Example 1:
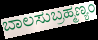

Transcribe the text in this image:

ಬಾಲಸುಬ್ರಹ್ಮಣ್ಯಂ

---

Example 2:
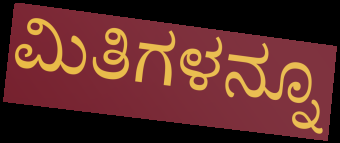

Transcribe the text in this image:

ಮಿತಿಗಳನ್ನೂ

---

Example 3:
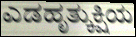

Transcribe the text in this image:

ಎಡಹೃತ್ಕುಕ್ಷಿಯ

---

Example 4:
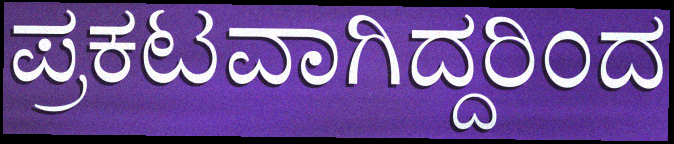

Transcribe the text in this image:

ಪ್ರಕಟವಾಗಿದ್ದರಿಂದ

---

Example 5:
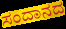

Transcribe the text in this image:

ಸಂದಾನದ